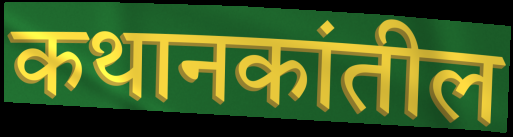
कथानकांतील